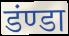
डंण्डा